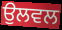
ਉਲਵਲ